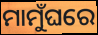
ମାମୁଁଘରେ